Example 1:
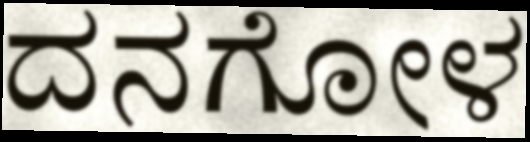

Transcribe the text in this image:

ದನಗೋಳ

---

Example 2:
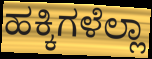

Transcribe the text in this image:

ಹಕ್ಕಿಗಳೆಲ್ಲಾ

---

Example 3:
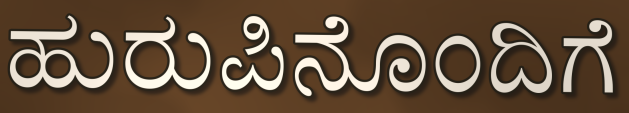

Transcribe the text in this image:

ಹುರುಪಿನೊಂದಿಗೆ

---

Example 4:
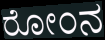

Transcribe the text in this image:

ರೋಂನ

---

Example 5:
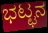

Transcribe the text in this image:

ಭಟ್ಟನ